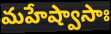
మహేష్వాసాః